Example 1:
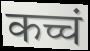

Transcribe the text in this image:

कच्चं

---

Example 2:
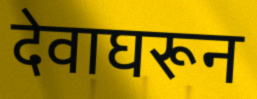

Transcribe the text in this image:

देवाघरून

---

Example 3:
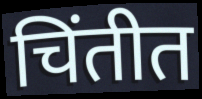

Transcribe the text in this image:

चिंतीत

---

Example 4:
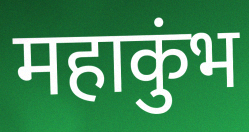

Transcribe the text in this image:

महाकुंभ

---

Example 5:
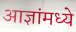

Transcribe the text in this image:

आज्ञांमध्ये